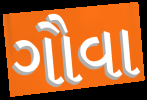
ગૌવા